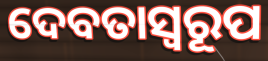
ଦେବତାସ୍ୱରୂପ